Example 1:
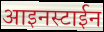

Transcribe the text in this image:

आइनस्टाईन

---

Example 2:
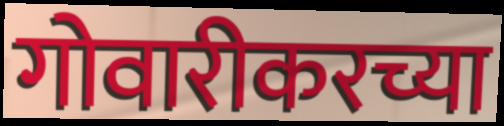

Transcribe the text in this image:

गोवारीकरच्या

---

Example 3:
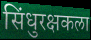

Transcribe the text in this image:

सिंधुरक्षकला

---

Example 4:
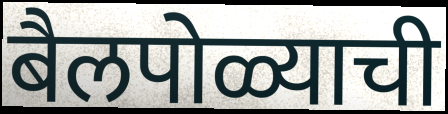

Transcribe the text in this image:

बैलपोळ्याची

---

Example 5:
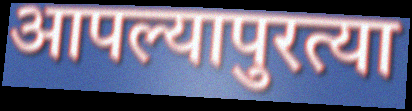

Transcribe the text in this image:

आपल्यापुरत्या